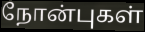
நோன்புகள்